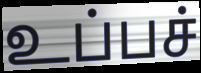
உப்பச்